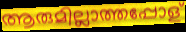
ആരുമില്ലാത്തപ്പോള്